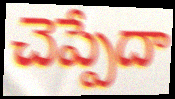
చెప్పేదా